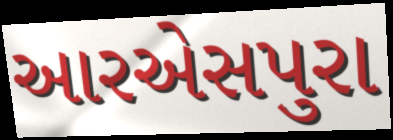
આરએસપુરા